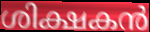
ശിക്ഷകൻ